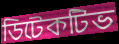
ডিটেকটিভ